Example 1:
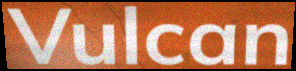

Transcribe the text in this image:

Vulcan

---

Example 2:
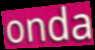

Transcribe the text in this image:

onda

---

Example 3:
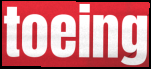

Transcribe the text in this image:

toeing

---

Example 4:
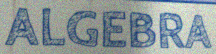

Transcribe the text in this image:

ALGEBRA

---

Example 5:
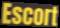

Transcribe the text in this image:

Escort